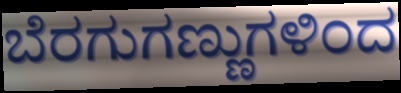
ಬೆರಗುಗಣ್ಣುಗಳಿಂದ